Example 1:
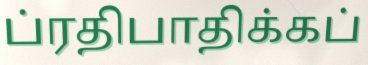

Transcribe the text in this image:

ப்ரதிபாதிக்கப்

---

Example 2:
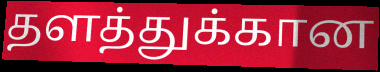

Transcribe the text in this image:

தளத்துக்கான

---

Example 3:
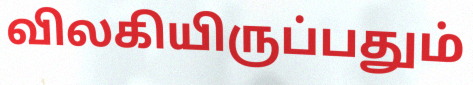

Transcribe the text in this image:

விலகியிருப்பதும்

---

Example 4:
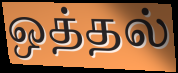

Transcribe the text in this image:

ஒத்தல்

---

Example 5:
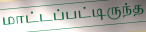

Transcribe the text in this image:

மாட்டப்பட்டிருந்த